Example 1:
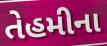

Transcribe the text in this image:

તેહમીના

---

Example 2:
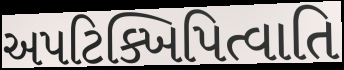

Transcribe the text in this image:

અપટિક્ખિપિત્વાતિ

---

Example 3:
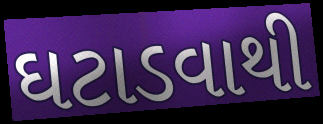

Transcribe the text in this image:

ઘટાડવાથી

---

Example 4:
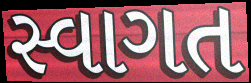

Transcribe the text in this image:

સ્વાગત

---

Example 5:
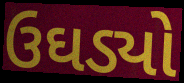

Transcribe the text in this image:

ઉઘડ્યો